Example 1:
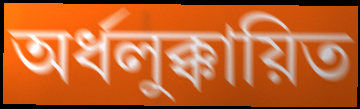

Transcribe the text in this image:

অর্ধলুক্কায়িত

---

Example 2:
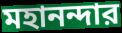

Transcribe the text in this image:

মহানন্দার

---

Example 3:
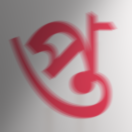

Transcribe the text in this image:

প্ত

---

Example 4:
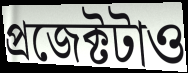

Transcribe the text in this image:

প্রজেক্টটাও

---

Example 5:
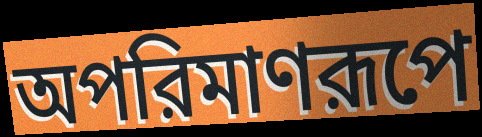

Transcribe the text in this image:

অপরিমাণরূপে